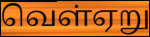
வெள்ஏறு